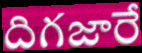
దిగజారే